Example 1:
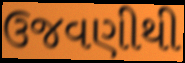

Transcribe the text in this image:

ઉજવણીથી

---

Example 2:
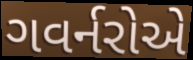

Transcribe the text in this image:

ગવર્નરોએ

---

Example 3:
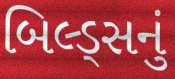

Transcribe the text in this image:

બિલ્ડ્સનું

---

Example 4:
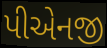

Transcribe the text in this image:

પીએનજી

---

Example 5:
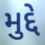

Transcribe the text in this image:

મુદ્દે